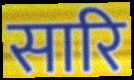
सारि